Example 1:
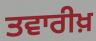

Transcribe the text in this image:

ਤਵਾਰੀਖ਼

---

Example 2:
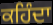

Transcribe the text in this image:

ਕਹਿੰਦਾ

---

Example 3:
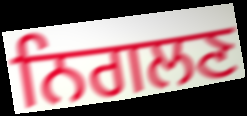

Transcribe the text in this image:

ਨਿਗਲਣ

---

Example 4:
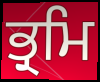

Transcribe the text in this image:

ਭ੍ਰਮਿ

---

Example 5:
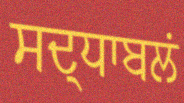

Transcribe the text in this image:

ਸਦ੍ਧਾਬਲਂ